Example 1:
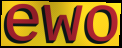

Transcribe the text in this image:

ewo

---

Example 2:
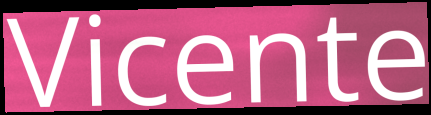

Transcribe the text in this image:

Vicente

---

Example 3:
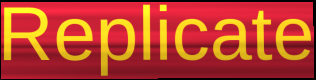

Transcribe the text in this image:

Replicate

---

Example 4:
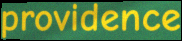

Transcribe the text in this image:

providence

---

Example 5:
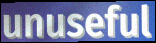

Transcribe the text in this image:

unuseful